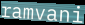
ramvani